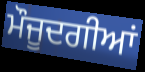
ਮੌਜੂਦਗੀਆਂ